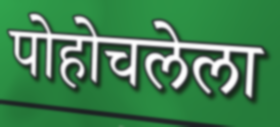
पोहोचलेला